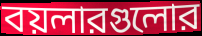
বয়লারগুলোর